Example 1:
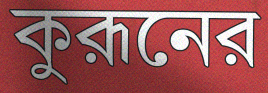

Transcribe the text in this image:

কুরূনের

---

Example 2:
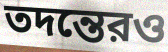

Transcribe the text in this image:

তদন্তেরও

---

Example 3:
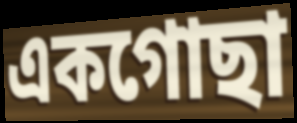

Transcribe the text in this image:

একগোছা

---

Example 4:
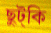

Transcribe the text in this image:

ছুট্কি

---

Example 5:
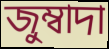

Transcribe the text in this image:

জুম্বাদা